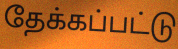
தேக்கப்பட்டு